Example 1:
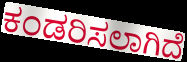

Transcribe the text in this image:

ಕಂಡರಿಸಲಾಗಿದೆ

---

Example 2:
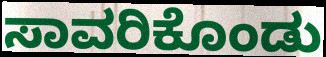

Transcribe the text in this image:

ಸಾವರಿಕೊಂಡು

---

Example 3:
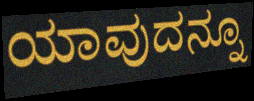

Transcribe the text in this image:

ಯಾವುದನ್ನೂ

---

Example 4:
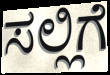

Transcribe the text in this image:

ಸಲ್ಲಿಗೆ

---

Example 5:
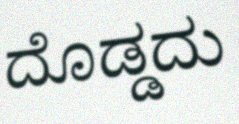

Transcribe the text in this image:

ದೊಡ್ಡದು